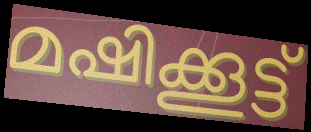
മഷിക്കൂട്ട്